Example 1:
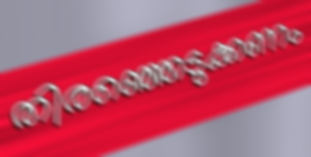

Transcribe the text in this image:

തിരഞ്ഞെടുക്കണം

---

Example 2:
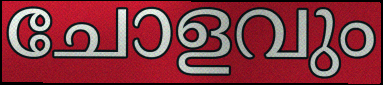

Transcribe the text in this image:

ചോളവും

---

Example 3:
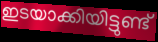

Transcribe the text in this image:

ഇടയാക്കിയിട്ടുണ്ട്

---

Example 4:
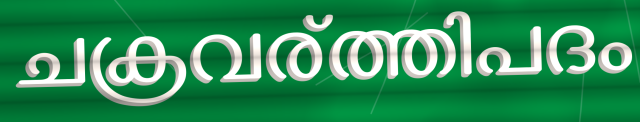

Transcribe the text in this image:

ചക്രവര്ത്തിപദം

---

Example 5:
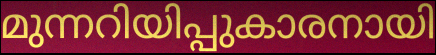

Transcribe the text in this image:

മുന്നറിയിപ്പുകാരനായി